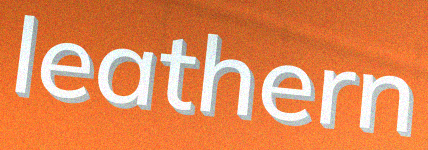
leathern